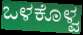
ಒಳಕೊಳ್ವ